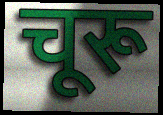
चूरू